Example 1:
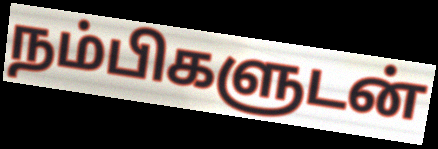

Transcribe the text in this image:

நம்பிகளுடன்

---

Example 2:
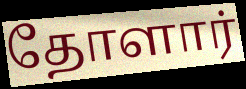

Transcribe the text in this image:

தோளார்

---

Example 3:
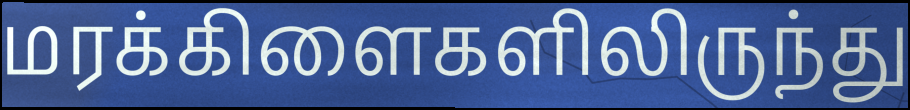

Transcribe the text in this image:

மரக்கிளைகளிலிருந்து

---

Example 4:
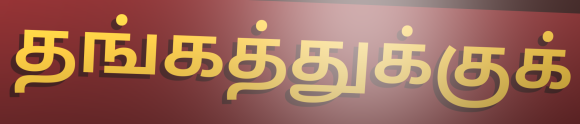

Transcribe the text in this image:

தங்கத்துக்குக்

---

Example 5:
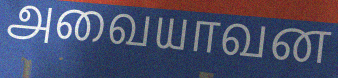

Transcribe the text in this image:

அவையாவன